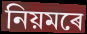
নিয়মৰে